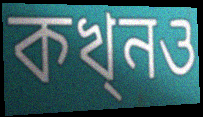
কখ্নও